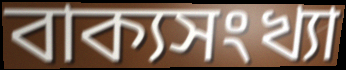
বাক্যসংখ্যা